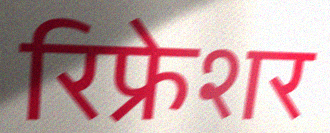
रिफ्रेशर